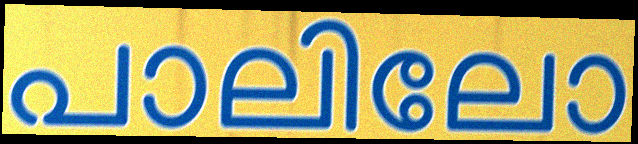
പാലിലോ